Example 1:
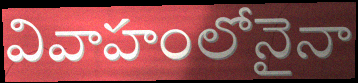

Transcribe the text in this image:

వివాహంలోనైనా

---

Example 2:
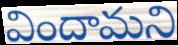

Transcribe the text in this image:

విందామని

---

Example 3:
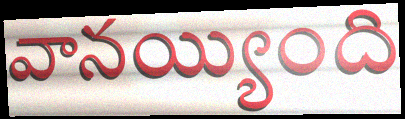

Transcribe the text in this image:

వానయ్యింది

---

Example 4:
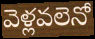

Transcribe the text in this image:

వెళ్లవలెనో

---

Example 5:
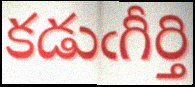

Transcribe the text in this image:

కడుఁగీర్తి